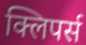
क्लिपर्स